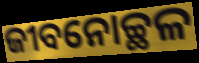
ଜୀବନୋଚ୍ଛଳ